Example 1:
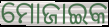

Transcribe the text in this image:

ମୋଜାଇକ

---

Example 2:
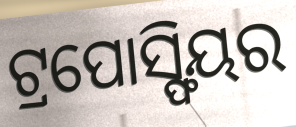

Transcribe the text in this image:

ଟ୍ରପୋସ୍ଫିୟର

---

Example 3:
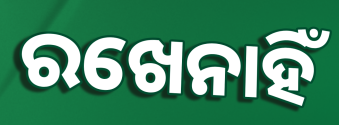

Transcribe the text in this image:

ରଖେନାହିଁ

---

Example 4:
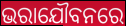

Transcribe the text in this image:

ଭରାଯୌବନରେ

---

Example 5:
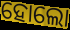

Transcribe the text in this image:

ହୋଲୋ